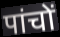
पांचों